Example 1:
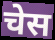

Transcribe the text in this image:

चेस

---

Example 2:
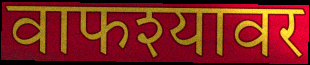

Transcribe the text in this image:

वाफश्यावर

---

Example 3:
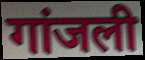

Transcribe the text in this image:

गांजली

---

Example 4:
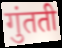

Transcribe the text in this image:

गुंतती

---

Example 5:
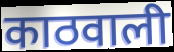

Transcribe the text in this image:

काठवाली